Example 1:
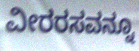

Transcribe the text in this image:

ವೀರರಸವನ್ನೂ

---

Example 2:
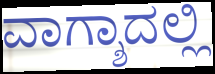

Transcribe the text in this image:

ವಾಗ್ಶಾದಲ್ಲಿ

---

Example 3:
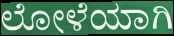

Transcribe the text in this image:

ಲೋಳೆಯಾಗಿ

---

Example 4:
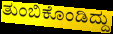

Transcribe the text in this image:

ತುಂಬಿಕೊಂಡಿದ್ದು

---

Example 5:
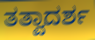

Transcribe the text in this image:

ತತ್ವಾದರ್ಶ